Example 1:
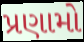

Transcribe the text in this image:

પ્રણામો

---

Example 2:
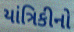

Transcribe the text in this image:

યાંત્રિકીનો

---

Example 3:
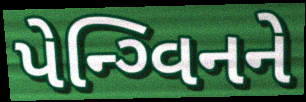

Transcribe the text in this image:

પેન્ગ્વિનને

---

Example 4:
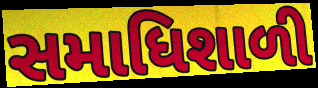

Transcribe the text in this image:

સમાધિશાળી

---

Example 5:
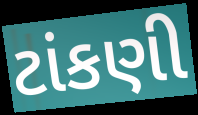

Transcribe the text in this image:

ટાંકણી